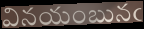
వినయంబునఁ